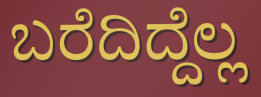
ಬರೆದಿದ್ದೆಲ್ಲ